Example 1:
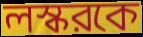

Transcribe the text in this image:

লস্করকে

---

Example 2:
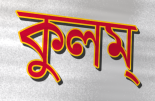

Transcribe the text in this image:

কুলম্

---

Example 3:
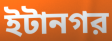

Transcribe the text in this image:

ইটানগর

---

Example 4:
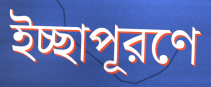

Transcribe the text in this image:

ইচ্ছাপূরণে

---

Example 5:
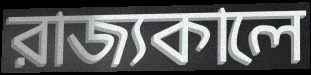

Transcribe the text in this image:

রাজ্যকালে